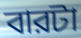
বারটা